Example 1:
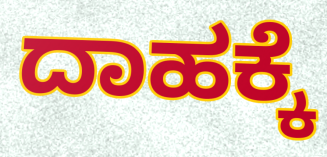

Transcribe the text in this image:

ದಾಹಕ್ಕೆ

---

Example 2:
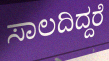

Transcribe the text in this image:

ಸಾಲದಿದ್ದರೆ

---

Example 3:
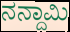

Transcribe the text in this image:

ನನ್ದಾಮಿ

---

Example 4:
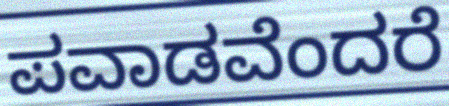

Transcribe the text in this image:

ಪವಾಡವೆಂದರೆ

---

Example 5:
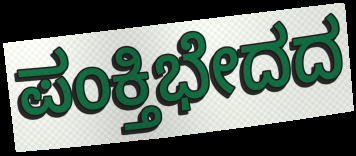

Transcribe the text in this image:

ಪಂಕ್ತಿಭೇದದ